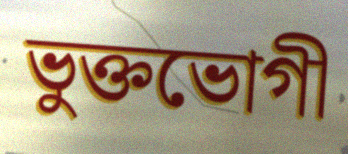
ভুক্তভোগী